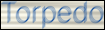
Torpedo